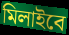
মিলাইবে